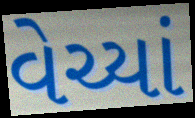
વેચ્યાં